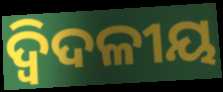
ଦ୍ବିଦଳୀୟ